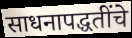
साधनापद्धतींचे